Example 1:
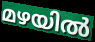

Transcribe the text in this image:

മഴയിൽ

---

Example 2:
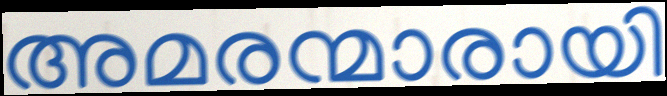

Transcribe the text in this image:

അമരന്മാരായി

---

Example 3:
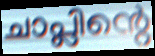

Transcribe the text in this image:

ചാപ്ലിന്റെ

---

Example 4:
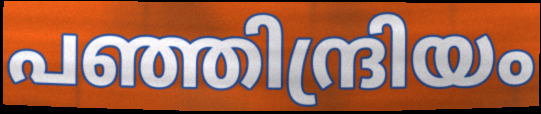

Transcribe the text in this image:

പഞ്ഞിന്ദ്രിയം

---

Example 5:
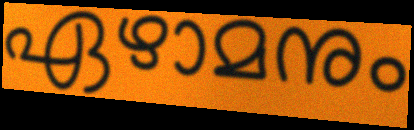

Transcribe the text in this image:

ഏഴാമനും